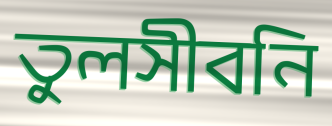
তুলসীবনি